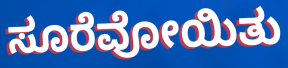
ಸೂರೆವೋಯಿತು